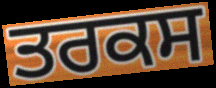
ਤਰਕਸ